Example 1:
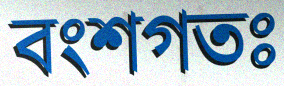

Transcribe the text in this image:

বংশগতঃ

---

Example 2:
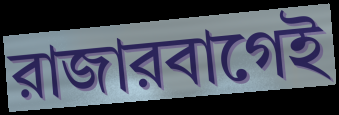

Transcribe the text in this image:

রাজারবাগেই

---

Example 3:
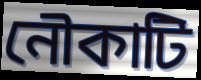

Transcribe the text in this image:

নৌকাটি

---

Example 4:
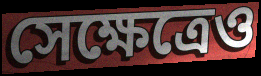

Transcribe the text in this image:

সেক্ষেত্রেও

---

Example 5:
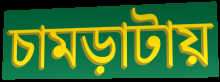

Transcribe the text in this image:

চামড়াটায়